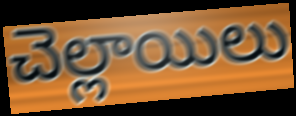
చెల్లాయిలు